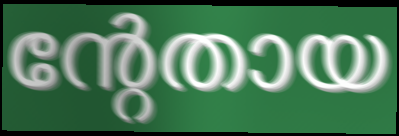
ന്റേതായ